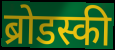
ब्रोडस्की